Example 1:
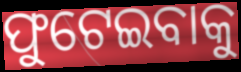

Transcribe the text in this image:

ଫୁଟେଇବାକୁ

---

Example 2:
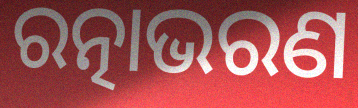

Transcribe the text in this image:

ରତ୍ନାଭରଣ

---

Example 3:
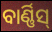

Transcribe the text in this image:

ବାର୍ଣ୍ଣିସ୍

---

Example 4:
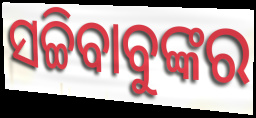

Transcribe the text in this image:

ସଚ୍ଚିବାବୁଙ୍କର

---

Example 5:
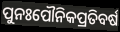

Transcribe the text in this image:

ପୁନଃପୌନିକପ୍ରତିବର୍ଷ